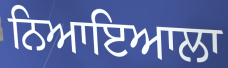
ਨਿਆਇਆਲਾ